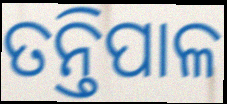
ତନ୍ତିପାଳ